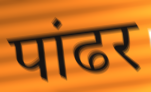
पांढर